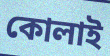
কোলাই